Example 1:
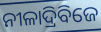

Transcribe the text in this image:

ନୀଳାଦ୍ରିବିଜେ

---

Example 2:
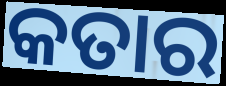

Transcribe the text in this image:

କତାର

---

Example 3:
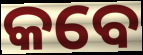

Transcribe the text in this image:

କବେ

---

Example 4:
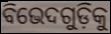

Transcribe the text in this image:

ବିଭେଦଗୁଡ଼ିକୁ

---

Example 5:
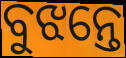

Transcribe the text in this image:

ବୁଝନ୍ତେ